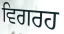
ਵਿਗਰਹ